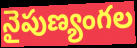
నైపుణ్యంగల